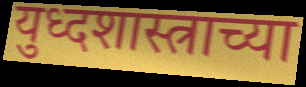
युध्दशास्त्राच्या